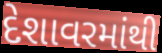
દેશાવરમાંથી